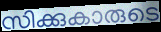
സിക്കുകാരുടെ